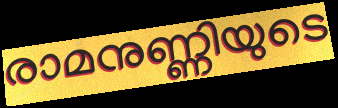
രാമനുണ്ണിയുടെ